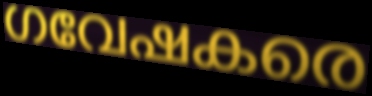
ഗവേഷകരെ